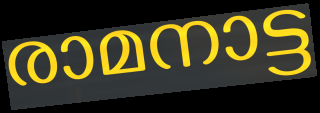
രാമനാട്ട